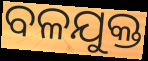
ବଳଯୁକ୍ତ